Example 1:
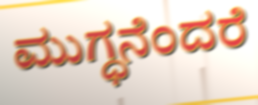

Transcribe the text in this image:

ಮುಗ್ಧನೆಂದರೆ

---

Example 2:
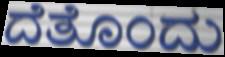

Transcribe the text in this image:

ದೆತೊಂದು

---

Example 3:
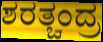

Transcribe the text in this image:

ಶರತ್ಚಂದ್ರ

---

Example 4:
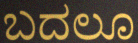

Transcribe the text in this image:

ಬದಲೂ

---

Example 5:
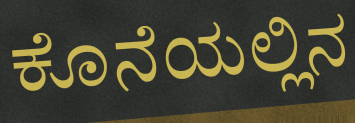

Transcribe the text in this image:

ಕೊನೆಯಲ್ಲಿನ